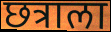
छत्राला